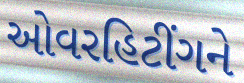
ઓવરહિટીંગને